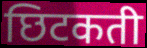
छिटकती